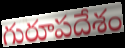
గురూపదేశం